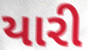
યારી